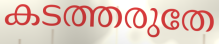
കടത്തരുതേ